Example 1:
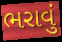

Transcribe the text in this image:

ભરાવું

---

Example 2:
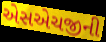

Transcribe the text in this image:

એસએચજીની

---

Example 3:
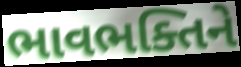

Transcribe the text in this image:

ભાવભક્તિને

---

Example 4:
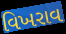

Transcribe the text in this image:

વિખરાવ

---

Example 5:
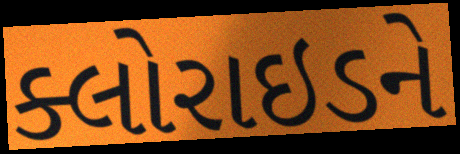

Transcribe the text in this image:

ક્લોરાઇડને